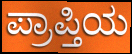
ಪ್ರಾಪ್ತಿಯ